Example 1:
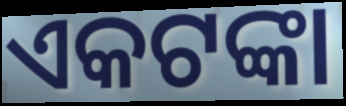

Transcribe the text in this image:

ଏକଟଙ୍କା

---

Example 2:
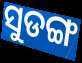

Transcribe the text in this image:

ସୁଡଙ୍ଗ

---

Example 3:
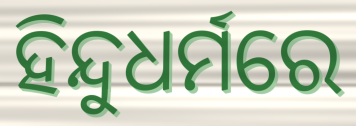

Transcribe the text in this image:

ହିନ୍ଦୁଧର୍ମରେ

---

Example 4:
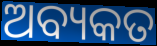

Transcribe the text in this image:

ଅବ୍ୟକତ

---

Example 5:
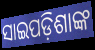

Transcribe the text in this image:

ସାଇପଡ଼ିଶାଙ୍କ